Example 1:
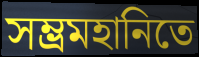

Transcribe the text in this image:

সম্ভ্রমহানিতে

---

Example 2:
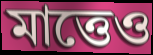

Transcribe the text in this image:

মাত্তেও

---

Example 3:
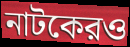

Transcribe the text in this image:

নাটকেরও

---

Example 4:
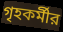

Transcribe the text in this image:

গৃহকর্মীর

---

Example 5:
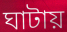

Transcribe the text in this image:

ঘাটায়